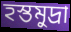
হস্তমুদ্রা